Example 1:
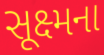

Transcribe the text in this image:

સૂક્ષ્મના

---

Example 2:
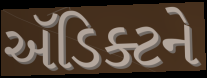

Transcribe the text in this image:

ઍડિક્ટને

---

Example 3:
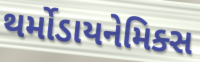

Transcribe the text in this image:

થર્મોડાયનેમિક્સ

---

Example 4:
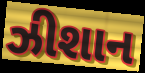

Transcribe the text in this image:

ઝીશાન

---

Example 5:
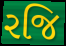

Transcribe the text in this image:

રજિ